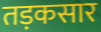
तड़कसार